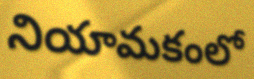
నియామకంలో